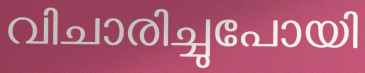
വിചാരിച്ചുപോയി